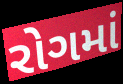
રોગમાં